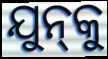
ଯୁନ୍‍କୁ